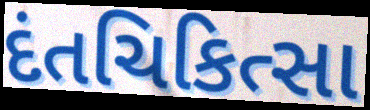
દંતચિકિત્સા